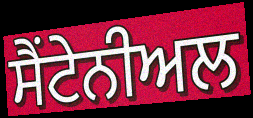
ਸੈਂਟੇਨੀਅਲ